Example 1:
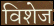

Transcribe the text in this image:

विशेज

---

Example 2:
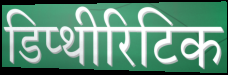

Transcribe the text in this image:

डिप्थीरिटिक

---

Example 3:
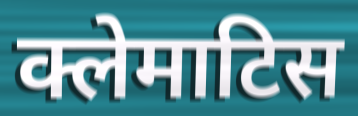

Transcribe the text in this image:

क्लेमाटिस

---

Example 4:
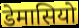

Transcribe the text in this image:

डेमासियो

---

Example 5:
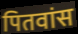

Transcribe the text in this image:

पितवांस